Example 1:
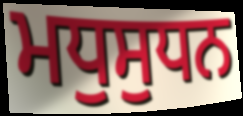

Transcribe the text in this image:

ਮਧੁਸੁਧਨ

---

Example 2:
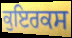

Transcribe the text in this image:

ਕੁਇਰਕਸ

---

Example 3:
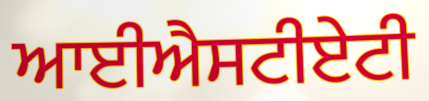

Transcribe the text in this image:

ਆਈਐਸਟੀਏਟੀ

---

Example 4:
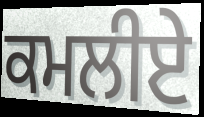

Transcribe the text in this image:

ਕਮਲੀਏ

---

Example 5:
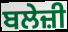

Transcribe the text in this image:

ਬਲੇਜ਼ੀ